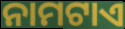
ନାମଟାଏ